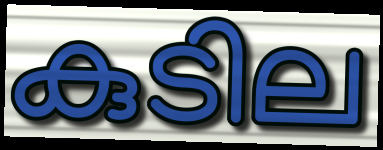
കുടില